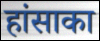
हांसाका